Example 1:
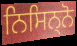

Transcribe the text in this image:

ਨਿਸਿਨ੍ਨੋ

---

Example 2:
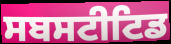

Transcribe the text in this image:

ਸਬਸਟੀਟਿਡ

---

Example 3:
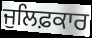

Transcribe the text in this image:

ਜੁਲਿਫ਼ਕਾਰ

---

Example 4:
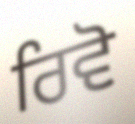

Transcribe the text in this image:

ਰਿਵੋ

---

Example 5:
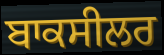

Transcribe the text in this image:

ਬਾਕਸੀਲਰ